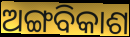
ଅଙ୍ଗବିକାଶ